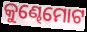
କୁଣ୍ଢେମୋଟ